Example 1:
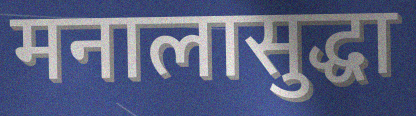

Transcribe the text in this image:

मनालासुद्धा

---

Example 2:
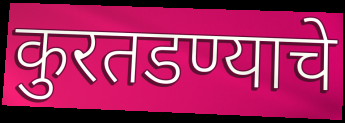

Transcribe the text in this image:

कुरतडण्याचे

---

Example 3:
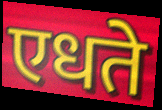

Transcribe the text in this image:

एधते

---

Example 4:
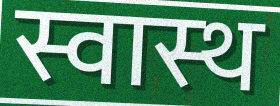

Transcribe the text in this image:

स्वास्थ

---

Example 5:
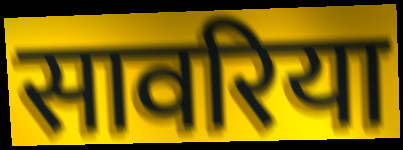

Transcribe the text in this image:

सावरिया